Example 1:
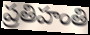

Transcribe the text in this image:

ప్రతిహంతి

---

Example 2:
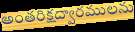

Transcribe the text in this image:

అంతరిక్షద్వారములను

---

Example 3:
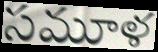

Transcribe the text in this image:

సమూళ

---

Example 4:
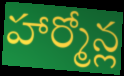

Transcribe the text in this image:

హార్మోన్ల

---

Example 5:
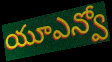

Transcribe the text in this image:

యూఎన్వో